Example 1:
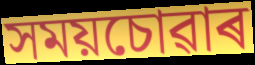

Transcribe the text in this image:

সময়চোৱাৰ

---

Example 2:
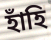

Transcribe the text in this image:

হাঁহি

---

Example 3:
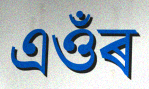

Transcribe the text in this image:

এওঁৰ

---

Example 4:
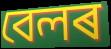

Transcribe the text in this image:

বেলৰ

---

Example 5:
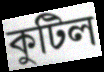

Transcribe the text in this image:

কুটিল